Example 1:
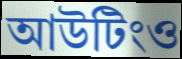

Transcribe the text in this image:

আউটিংও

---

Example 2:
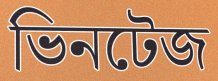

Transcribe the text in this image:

ভিনটেজ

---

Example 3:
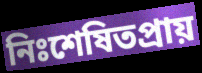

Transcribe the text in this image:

নিঃশেষিতপ্রায়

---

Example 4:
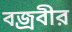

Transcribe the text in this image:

বজ্রবীর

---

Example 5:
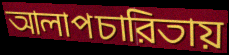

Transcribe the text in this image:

আলাপচারিতায়